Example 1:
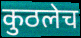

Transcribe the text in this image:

कुठलेच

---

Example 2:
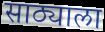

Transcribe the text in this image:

साठ्याला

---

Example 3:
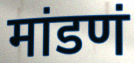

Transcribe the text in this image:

मांडणं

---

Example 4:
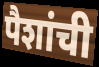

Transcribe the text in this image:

पैशांची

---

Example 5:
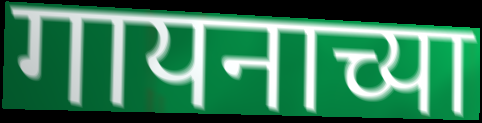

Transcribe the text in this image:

गायनाच्या